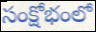
సంక్షోభంలో